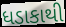
ધડાકાથી